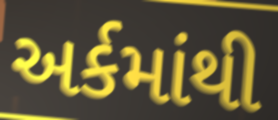
અર્કમાંથી